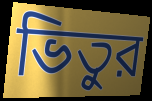
ভিতুর